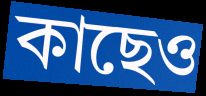
কাছেও